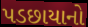
પડછાયાનો